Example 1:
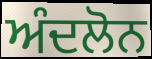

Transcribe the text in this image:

ਅੰਦਲੋਨ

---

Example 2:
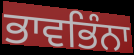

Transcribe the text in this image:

ਭਾਵਭਿੰਨਾ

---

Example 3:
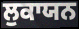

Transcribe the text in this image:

ਲੁਕਾਯਨ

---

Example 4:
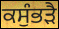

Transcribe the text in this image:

ਕਸੁੰਭੜੈ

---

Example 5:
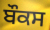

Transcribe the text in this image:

ਬੌਕਸ